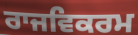
ਰਾਜਵਿਕਰਮ